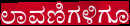
ಲಾವಣಿಗಳಿಗೂ